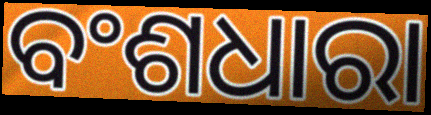
ବଂଶଧାରା